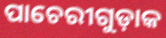
ପାଚେରୀଗୁଡ଼ାକ